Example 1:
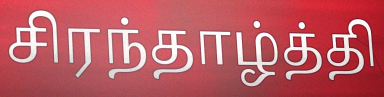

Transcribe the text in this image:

சிரந்தாழ்த்தி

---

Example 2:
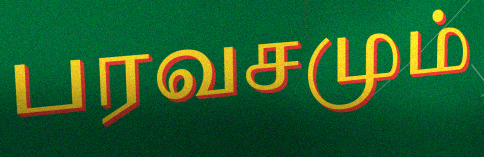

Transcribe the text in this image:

பரவசமும்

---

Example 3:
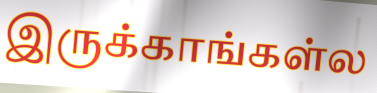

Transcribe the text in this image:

இருக்காங்கள்ல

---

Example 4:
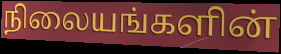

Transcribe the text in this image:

நிலையங்களின்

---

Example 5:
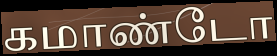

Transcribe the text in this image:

கமாண்டோ